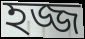
হজ্জ